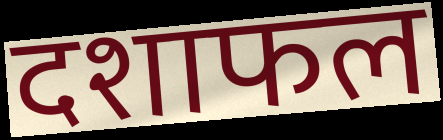
दशाफल